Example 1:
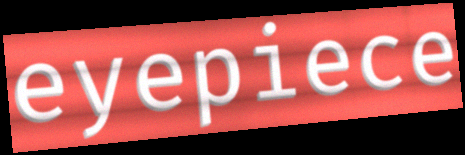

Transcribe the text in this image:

eyepiece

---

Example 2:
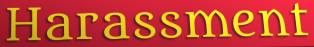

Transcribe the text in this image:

Harassment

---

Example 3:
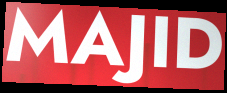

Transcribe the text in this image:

MAJID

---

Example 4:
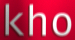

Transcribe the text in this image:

kho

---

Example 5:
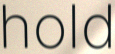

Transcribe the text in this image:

hold